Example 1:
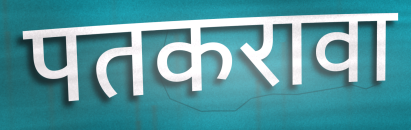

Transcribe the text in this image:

पतकरावा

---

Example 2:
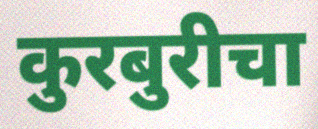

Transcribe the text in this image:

कुरबुरीचा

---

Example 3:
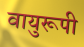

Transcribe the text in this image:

वायुरूपी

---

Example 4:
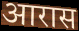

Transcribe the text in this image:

आरास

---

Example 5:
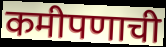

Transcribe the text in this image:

कमीपणाची